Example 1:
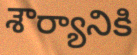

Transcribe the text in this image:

శౌర్యానికి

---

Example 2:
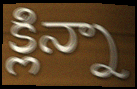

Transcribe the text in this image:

క్లిన్నా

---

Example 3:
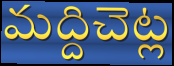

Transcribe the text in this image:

మద్దిచెట్ల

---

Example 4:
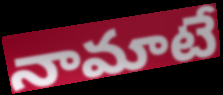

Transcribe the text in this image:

నామాటే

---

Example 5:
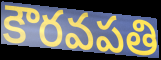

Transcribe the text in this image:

కౌరవపతి